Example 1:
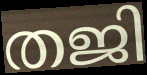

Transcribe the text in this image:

തജി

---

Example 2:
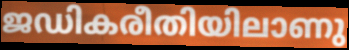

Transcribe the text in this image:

ജഡികരീതിയിലാണു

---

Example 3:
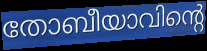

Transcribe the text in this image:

തോബീയാവിന്റെ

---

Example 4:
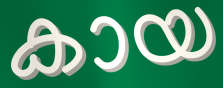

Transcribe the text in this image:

കായ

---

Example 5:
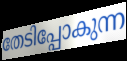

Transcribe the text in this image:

തേടിപ്പോകുന്ന